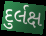
દુર્લક્ષ